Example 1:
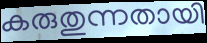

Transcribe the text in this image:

കരുതുന്നതായി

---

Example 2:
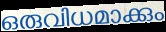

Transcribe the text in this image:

ഒരുവിധമാക്കും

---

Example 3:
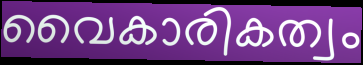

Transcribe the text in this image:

വൈകാരികത്വം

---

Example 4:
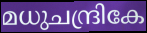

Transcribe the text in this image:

മധുചന്ദ്രികേ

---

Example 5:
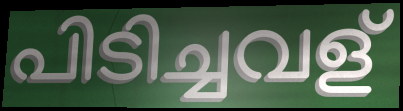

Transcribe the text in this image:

പിടിച്ചവള്